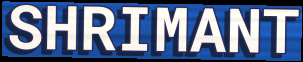
SHRIMANT